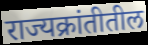
राज्यक्रांतीतील